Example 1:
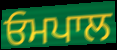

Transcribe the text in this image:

ਓਮਪਾਲ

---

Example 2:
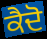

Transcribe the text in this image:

ਕੈਦੋ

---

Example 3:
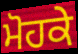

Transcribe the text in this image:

ਮੋਹਕੇ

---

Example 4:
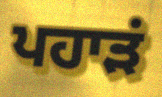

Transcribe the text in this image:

ਪਹਾੜਂ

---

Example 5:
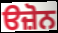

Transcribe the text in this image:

ੳਜ਼ੋਨ